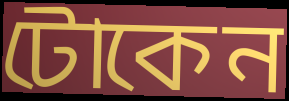
টোকেন